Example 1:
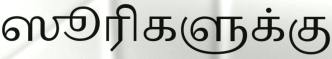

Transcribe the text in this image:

ஸூரிகளுக்கு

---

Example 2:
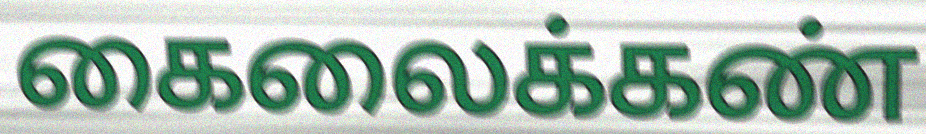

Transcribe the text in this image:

கைலைக்கண்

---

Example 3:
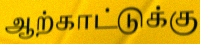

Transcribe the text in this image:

ஆற்காட்டுக்கு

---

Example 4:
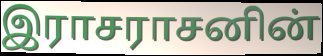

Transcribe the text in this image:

இராசராசனின்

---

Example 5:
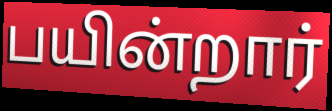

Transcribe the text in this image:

பயின்றார்